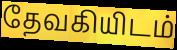
தேவகியிடம்